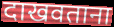
दाखवताना